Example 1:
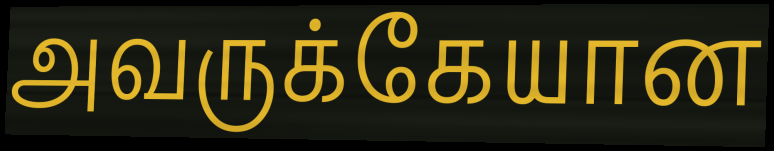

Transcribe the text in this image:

அவருக்கேயான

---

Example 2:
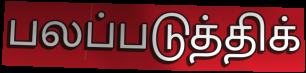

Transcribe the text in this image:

பலப்படுத்திக்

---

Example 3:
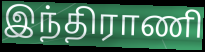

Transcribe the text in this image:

இந்திராணி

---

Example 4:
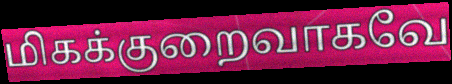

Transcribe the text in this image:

மிகக்குறைவாகவே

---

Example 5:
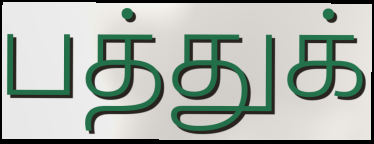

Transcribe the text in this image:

பத்துக்